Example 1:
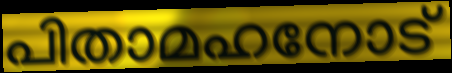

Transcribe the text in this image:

പിതാമഹനോട്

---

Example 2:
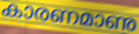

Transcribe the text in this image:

കാരണമാണു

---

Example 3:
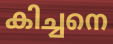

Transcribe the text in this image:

കിച്ചനെ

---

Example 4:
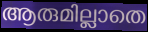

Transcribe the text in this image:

ആരുമില്ലാതെ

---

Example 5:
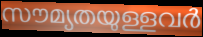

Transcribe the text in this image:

സൗമ്യതയുള്ളവർ